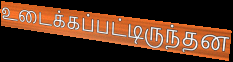
உடைக்கப்பட்டிருந்தன